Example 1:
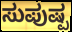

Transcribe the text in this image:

ಸುಪುಷ್ಪ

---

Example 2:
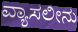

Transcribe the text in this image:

ವ್ಯಾಸಲೀನು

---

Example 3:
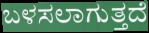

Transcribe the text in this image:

ಬಳಸಲಾಗುತ್ತದೆ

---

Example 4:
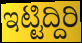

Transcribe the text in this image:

ಇಟ್ಟಿದ್ದಿರಿ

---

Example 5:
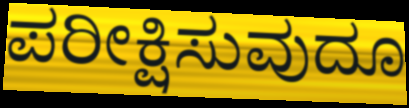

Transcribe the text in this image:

ಪರೀಕ್ಷಿಸುವುದೂ